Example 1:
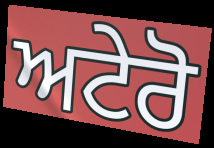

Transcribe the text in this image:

ਅਟੇਰੋ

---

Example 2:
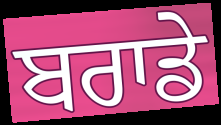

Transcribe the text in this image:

ਬਰਾਡੇ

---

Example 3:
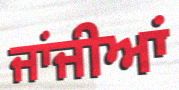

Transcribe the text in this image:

ਜਾਂਜੀਆਂ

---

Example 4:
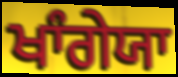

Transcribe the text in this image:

ਖਾੰਗੇਯਾ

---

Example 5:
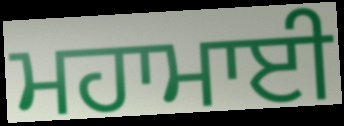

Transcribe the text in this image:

ਮਹਾਮਾਈ